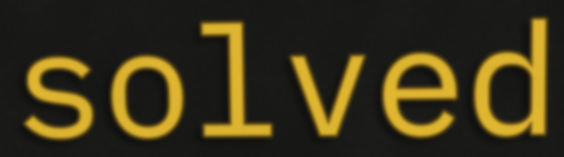
solved